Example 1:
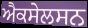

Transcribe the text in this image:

ਐਕਸੇਲਸਨ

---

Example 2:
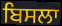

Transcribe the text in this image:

ਬਿਸਲਾ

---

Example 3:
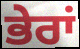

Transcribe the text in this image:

ਭੇਰਾਂ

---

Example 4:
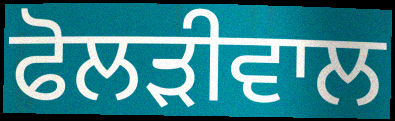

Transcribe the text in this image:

ਫੋਲੜੀਵਾਲ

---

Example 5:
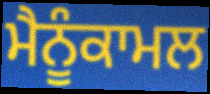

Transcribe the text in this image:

ਮੈਨੂੰਕਾਮਲ